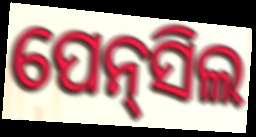
ପେନ୍‌ସିଲ